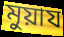
মুয়ায